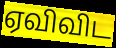
ஏவிவிட